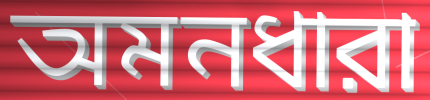
অমনধারা